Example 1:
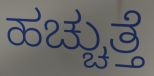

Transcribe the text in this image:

ಹಚ್ಚುತ್ತೆ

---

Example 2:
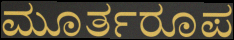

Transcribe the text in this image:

ಮೂರ್ತರೂಪ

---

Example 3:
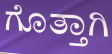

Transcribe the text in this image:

ಗೊತ್ತಾಗಿ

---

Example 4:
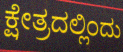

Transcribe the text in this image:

ಕ್ಷೇತ್ರದಲ್ಲಿಂದು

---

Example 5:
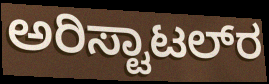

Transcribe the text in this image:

ಅರಿಸ್ಟಾಟಲ್‍ರ